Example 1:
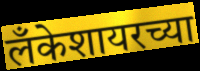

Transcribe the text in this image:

लँकेशायरच्या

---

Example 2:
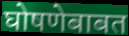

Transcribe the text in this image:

घोषणेबाबत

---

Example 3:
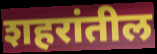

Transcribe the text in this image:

शहरांतील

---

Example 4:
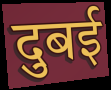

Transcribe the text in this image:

दुबई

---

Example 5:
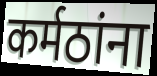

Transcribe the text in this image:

कर्मठांना